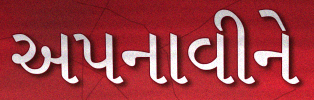
અપનાવીને